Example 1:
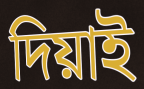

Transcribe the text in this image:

দিয়াই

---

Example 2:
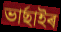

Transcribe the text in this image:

ভাৰ্ছাইৰ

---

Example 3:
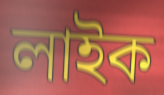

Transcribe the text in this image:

লাইক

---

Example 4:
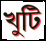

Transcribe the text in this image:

খুটি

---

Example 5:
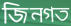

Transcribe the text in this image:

জিনগত